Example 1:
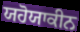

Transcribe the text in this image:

ਯਹੋਯਾਕੀਨ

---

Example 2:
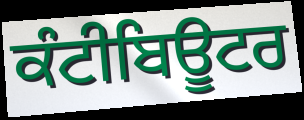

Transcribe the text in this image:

ਕੰਟੀਬਿਊਟਰ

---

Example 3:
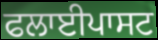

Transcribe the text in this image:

ਫਲਾਈਪਾਸਟ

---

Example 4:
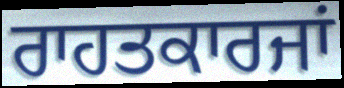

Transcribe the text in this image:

ਰਾਹਤਕਾਰਜਾਂ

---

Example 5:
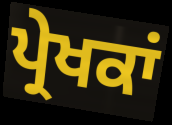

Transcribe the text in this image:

ਪ੍ਰੇਖਕਾਂ